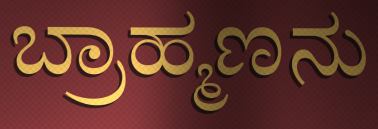
ಬ್ರಾಹ್ಮಣನು